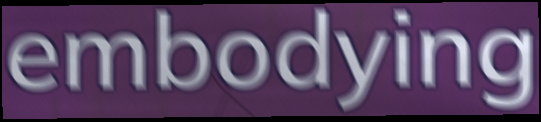
embodying